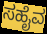
ಸಹೈವ